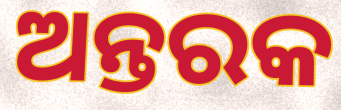
ଅନ୍ତରକ